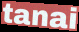
tanai